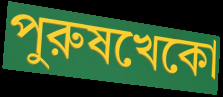
পুরুষখেকো